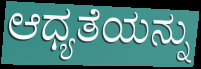
ಆಧ್ಯತೆಯನ್ನು